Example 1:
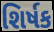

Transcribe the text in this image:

શિર્ષક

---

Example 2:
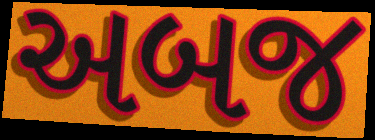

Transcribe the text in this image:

અબજ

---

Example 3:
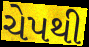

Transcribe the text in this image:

ચેપથી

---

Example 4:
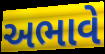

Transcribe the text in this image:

અભાવે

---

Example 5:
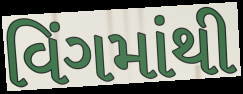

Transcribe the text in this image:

વિંગમાંથી